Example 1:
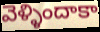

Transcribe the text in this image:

వెళ్ళిందాకా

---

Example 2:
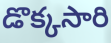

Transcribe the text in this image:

డొక్కసారి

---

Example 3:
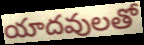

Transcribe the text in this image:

యాదవులతో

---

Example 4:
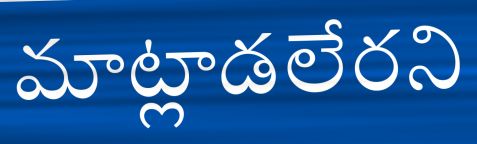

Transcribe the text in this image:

మాట్లాడలేరని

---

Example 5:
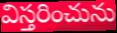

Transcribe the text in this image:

విస్తరించును